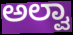
ಅಲ್ವಾ